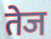
तेज